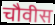
चौवीस